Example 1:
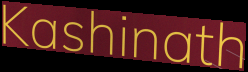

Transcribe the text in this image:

Kashinath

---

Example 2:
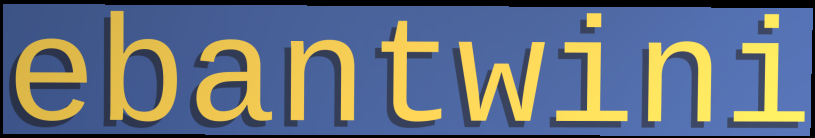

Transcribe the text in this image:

ebantwini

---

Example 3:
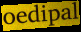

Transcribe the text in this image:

oedipal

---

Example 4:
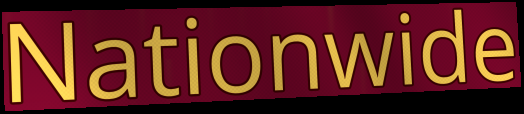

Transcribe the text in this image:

Nationwide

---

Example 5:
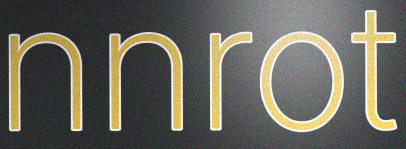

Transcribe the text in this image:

nnrot